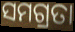
ସମଗ୍ରତା